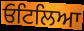
ਓਟਿਲਿਆ